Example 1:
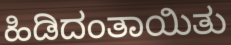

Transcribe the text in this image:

ಹಿಡಿದಂತಾಯಿತು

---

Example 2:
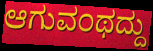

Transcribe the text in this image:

ಆಗುವಂಥದ್ದು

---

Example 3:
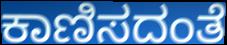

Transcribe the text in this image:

ಕಾಣಿಸದಂತೆ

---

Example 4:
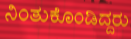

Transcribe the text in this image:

ನಿಂತುಕೊಂಡಿದ್ದರು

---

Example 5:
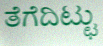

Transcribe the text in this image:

ತೆಗೆದಿಟ್ಟು